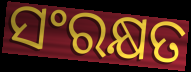
ସଂରକ୍ଷତ